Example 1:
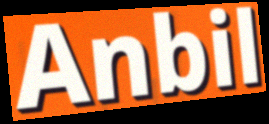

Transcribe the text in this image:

Anbil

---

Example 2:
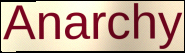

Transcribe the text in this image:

Anarchy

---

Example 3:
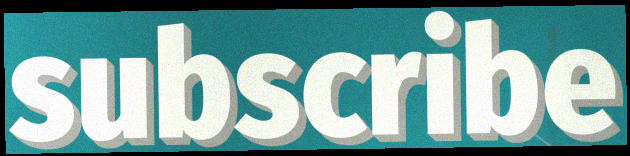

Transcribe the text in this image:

subscribe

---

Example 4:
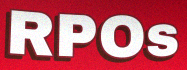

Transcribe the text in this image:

RPOs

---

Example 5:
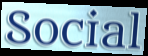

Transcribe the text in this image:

Social